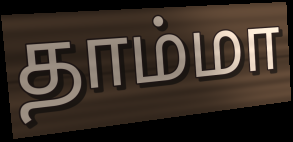
தாம்மா